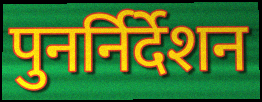
पुनर्निर्देशन